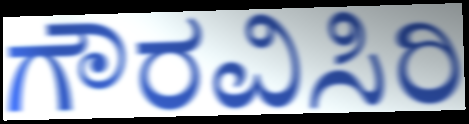
ಗೌರವಿಸಿರಿ